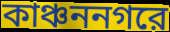
কাঞ্চননগরে